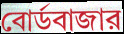
বোর্ডবাজার